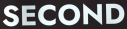
SECOND